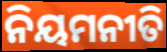
ନିୟମନୀତି